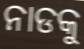
ନାଡକୁ